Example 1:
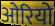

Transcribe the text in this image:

ओरियो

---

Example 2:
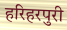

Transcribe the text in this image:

हरिहरपुरी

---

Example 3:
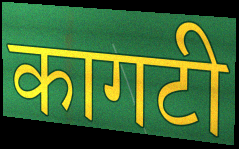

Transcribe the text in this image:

कागटी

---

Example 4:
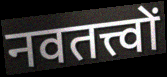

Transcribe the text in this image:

नवतत्त्वों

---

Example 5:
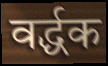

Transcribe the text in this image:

वर्द्धक